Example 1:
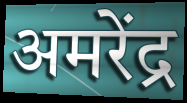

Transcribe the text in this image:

अमरेंद्र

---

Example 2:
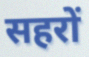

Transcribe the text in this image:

सहरों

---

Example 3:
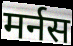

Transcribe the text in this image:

मर्नस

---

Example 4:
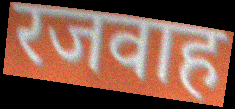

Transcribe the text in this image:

रजवाह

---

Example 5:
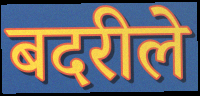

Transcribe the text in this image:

बदरीले